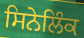
ਸਿਨੇਲਿੰਕ